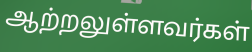
ஆற்றலுள்ளவர்கள்